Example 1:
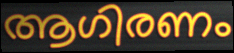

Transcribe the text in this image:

ആഗിരണം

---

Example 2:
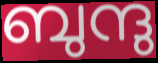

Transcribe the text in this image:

ബുന്ദു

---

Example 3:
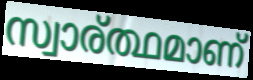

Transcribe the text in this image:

സ്വാര്ത്ഥമാണ്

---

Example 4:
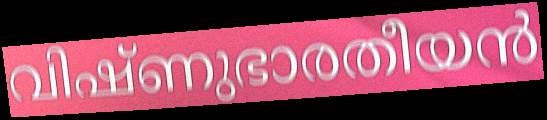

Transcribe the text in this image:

വിഷ്ണുഭാരതീയൻ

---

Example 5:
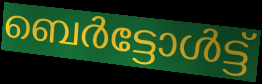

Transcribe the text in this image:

ബെർട്ടോൾട്ട്